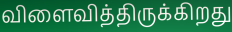
விளைவித்திருக்கிறது